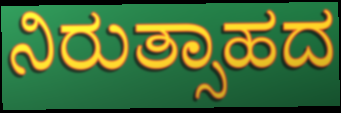
ನಿರುತ್ಸಾಹದ